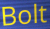
Bolt